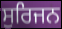
ਸੁਰਿਜਨ